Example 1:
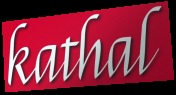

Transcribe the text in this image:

kathal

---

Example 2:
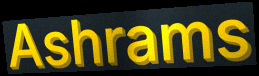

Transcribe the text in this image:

Ashrams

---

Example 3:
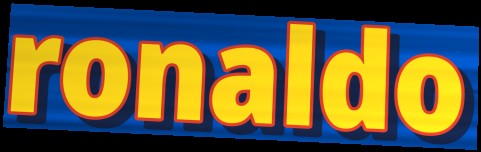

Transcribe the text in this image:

ronaldo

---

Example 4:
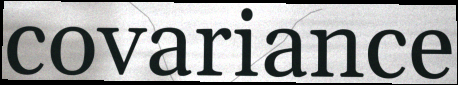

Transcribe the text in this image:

covariance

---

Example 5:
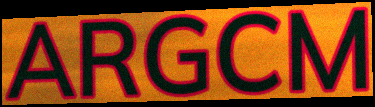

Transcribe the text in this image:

ARGCM